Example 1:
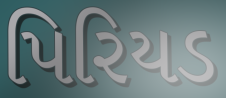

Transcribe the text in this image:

પિરિયડ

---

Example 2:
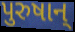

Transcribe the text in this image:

પુરુષાન્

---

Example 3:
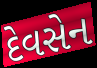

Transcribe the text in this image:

દેવસેન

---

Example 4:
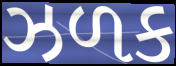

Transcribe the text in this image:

ઝળક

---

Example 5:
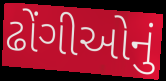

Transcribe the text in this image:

ઢોંગીઓનું